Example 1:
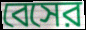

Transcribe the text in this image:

বেসের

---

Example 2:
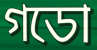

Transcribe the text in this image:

গডো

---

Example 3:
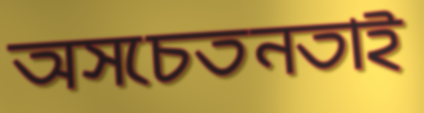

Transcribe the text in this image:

অসচেতনতাই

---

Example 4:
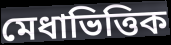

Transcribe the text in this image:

মেধাভিত্তিক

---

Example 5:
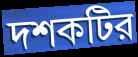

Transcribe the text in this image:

দশকটির